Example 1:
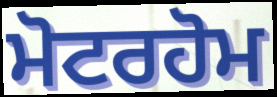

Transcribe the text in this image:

ਮੋਟਰਹੋਮ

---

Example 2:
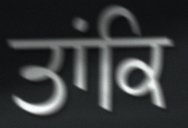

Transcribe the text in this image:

ਤਾਂਕਿ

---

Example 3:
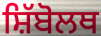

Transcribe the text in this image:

ਸ਼ਿੱਬੋਲਥ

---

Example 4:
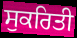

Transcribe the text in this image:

ਸੁਕਰਿਤੀ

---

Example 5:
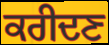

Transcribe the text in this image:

ਕਰੀਦਣ